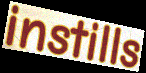
instills